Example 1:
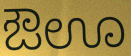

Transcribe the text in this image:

ಔಊ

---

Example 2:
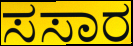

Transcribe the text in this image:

ಸಸಾರ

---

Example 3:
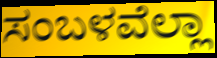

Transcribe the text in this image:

ಸಂಬಳವೆಲ್ಲಾ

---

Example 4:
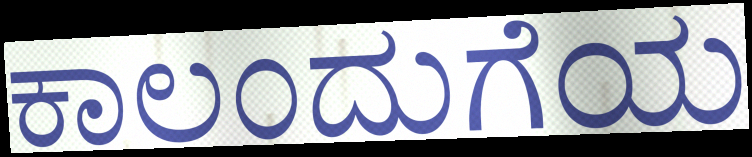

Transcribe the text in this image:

ಕಾಲಂದುಗೆಯ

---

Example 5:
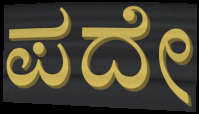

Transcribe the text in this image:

ಪದೇ